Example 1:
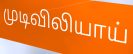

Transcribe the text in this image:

முடிவிலியாய்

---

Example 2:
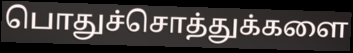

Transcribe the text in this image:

பொதுச்சொத்துக்களை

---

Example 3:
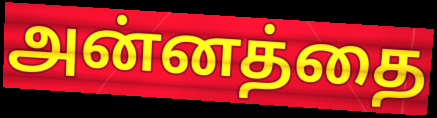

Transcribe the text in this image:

அன்னத்தை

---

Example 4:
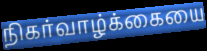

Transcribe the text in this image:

நிகர்வாழ்க்கையை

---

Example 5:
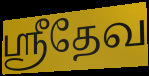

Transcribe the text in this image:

ஸ்ரீதேவ